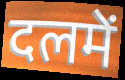
दलमें